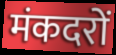
मंकदरों